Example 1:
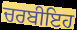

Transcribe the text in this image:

ਚਰਬੀਇਹ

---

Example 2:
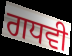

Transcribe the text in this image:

ਗਧਵੀ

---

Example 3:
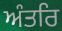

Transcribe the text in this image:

ਅੰਤਰਿ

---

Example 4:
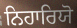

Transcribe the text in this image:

ਨਿਹਾਰਿਯੋ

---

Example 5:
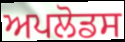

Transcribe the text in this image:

ਅਪਲੋਡਸ